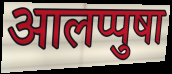
आलप्पुषा